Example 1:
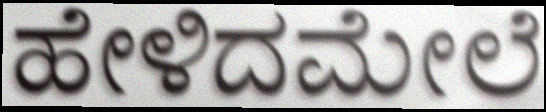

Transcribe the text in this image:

ಹೇಳಿದಮೇಲೆ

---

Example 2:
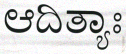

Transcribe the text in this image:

ಆದಿತ್ಯಾಃ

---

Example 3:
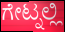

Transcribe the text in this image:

ಗೇಟ್ನಲ್ಲಿ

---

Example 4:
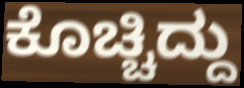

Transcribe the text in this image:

ಕೊಚ್ಚಿದ್ದು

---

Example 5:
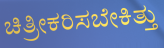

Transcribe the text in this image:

ಚಿತ್ರೀಕರಿಸಬೇಕಿತ್ತು